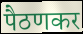
पैठणकर